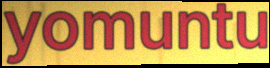
yomuntu